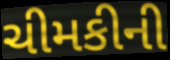
ચીમકીની